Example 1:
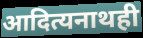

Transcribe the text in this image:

आदित्यनाथही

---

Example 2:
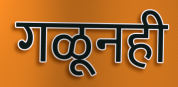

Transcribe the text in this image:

गळूनही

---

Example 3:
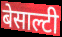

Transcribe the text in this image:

बेसाल्टी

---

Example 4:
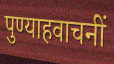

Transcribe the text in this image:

पुण्याहवाचनीं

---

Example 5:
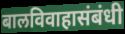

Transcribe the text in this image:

बालविवाहासंबंधी